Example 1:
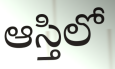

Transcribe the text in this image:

ఆస్తిలో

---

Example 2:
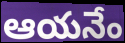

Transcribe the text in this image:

ఆయనేం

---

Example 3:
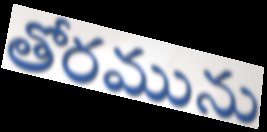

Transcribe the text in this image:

తోరమును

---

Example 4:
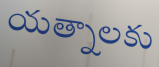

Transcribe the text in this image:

యత్నాలకు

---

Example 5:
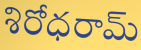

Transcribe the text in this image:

శిరోధరామ్